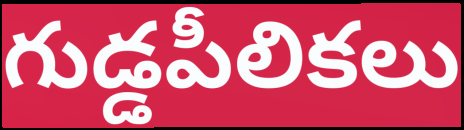
గుడ్డపీలికలు